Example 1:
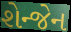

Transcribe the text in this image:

શેન્જેન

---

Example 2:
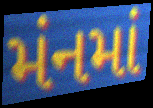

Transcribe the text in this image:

મંનમાં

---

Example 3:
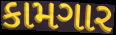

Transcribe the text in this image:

કામગાર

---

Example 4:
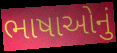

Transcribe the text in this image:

ભાષાઓનું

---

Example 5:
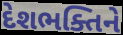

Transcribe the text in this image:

દેશભક્તિને